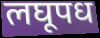
लघूपध